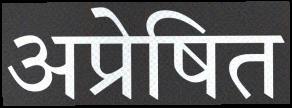
अप्रेषित